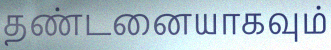
தண்டனையாகவும்